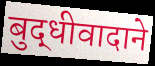
बुद्धीवादाने